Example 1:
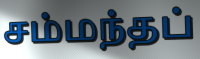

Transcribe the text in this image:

சம்மந்தப்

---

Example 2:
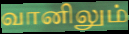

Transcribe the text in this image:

வானிலும்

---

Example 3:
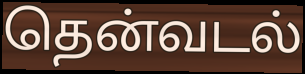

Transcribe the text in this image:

தென்வடல்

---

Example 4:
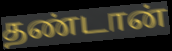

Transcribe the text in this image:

தண்டான்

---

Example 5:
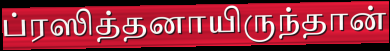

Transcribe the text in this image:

ப்ரஸித்தனாயிருந்தான்